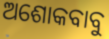
ଅଶୋକବାବୁ